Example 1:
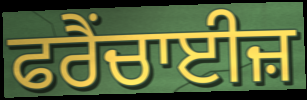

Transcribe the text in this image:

ਫਰੈਂਚਾਈਜ਼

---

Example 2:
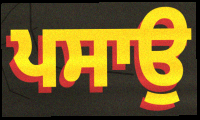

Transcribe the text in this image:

ਪਸਾਉ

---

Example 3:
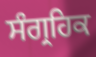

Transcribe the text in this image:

ਸੰਗ੍ਰਹਿਕ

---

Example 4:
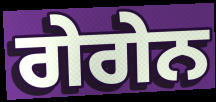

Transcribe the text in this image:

ਗੇਗੇਨ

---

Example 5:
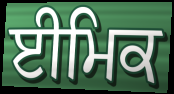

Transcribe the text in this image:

ਈਮਿਕ